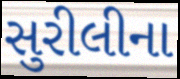
સુરીલીના